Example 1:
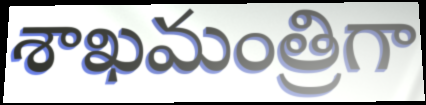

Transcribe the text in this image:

శాఖమంత్రిగా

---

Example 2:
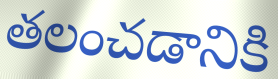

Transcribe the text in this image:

తలంచడానికి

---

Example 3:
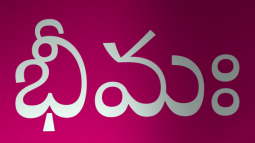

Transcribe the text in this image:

భీమః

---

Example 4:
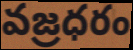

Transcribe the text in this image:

వజ్రధరం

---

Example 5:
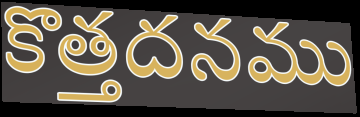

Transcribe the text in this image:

కొత్తదనము